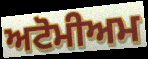
ਅਟੋਮੀਅਮ